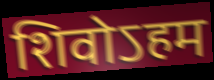
शिवोऽहम